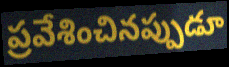
ప్రవేశించినప్పుడూ